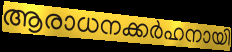
ആരാധനക്കർഹനായി